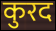
कुरद